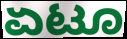
ಏಟೂ